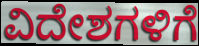
ವಿದೇಶಗಳಿಗೆ